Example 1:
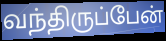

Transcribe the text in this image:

வந்திருப்பேன்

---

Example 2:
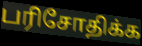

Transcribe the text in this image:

பரிசோதிக்க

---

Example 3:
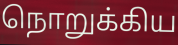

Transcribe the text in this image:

நொறுக்கிய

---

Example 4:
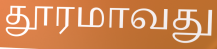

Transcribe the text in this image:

தூரமாவது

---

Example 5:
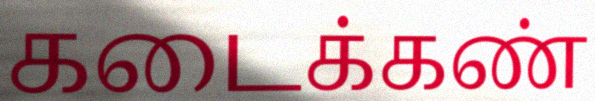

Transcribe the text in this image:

கடைக்கண்